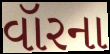
વૉરના